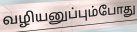
வழியனுப்பும்போது